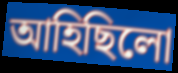
আহিছিলো